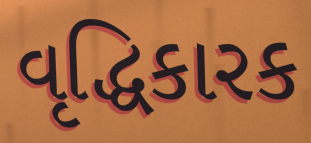
વૃદ્ધિકારક